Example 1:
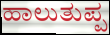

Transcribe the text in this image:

ಹಾಲುತುಪ್ಪ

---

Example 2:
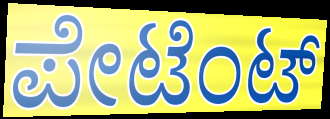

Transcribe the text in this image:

ಪೇಟೆಂಟ್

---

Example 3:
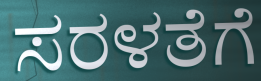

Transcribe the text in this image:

ಸರಳತೆಗೆ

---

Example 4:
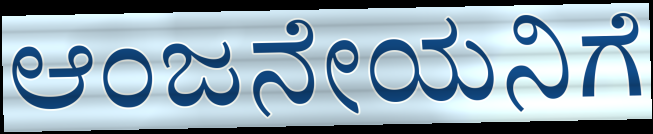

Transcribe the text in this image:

ಆಂಜನೇಯನಿಗೆ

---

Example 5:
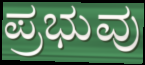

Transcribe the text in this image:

ಪ್ರಭುವು